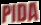
PIDA